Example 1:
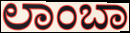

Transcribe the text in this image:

ಲಾಂಬಾ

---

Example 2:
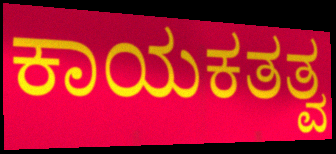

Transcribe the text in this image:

ಕಾಯಕತತ್ವ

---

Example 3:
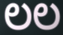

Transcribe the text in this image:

ಲಲ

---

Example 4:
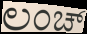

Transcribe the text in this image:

ಲಂಚ್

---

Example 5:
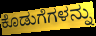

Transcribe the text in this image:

ಕೊಡುಗೆಗಳನ್ನು